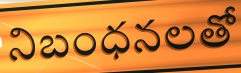
నిబంధనలతో